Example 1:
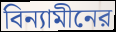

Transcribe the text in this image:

বিন্যামীনের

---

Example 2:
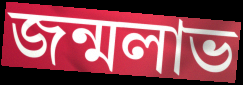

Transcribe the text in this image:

জন্মলাভ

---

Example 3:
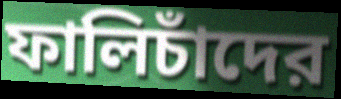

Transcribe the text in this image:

ফালিচাঁদের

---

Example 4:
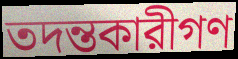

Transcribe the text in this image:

তদন্তকারীগণ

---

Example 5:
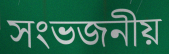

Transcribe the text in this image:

সংভজনীয়